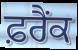
ਫ਼ਰੈਂਕ